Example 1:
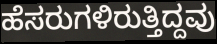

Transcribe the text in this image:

ಹೆಸರುಗಳಿರುತ್ತಿದ್ದವು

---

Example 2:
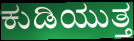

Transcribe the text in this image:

ಕುಡಿಯುತ್ತ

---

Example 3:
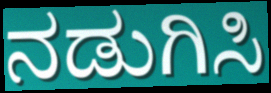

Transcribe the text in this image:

ನಡುಗಿಸಿ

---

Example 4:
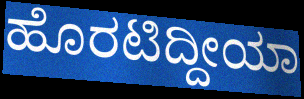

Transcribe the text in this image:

ಹೊರಟಿದ್ದೀಯಾ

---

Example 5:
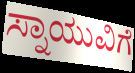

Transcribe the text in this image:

ಸ್ನಾಯುವಿಗೆ